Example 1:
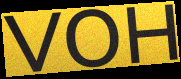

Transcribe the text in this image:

VOH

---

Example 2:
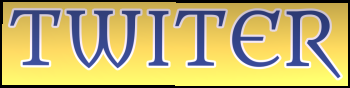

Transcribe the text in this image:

TWITER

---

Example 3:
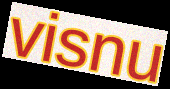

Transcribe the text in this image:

visnu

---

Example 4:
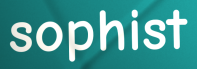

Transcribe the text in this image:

sophist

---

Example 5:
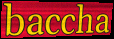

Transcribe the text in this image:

baccha